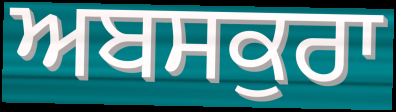
ਅਬਸਕੁਰਾ